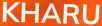
KHARU